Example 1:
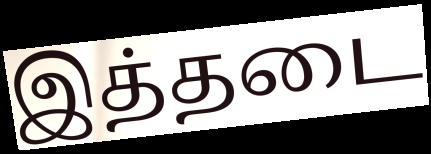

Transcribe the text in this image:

இத்தடை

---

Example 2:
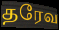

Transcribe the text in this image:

தரேவ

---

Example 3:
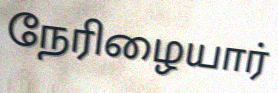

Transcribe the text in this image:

நேரிழையார்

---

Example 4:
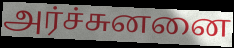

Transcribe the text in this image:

அர்ச்சுனனை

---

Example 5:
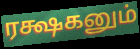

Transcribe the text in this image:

ரக்ஷகனும்